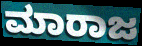
ಮಾರಾಜ